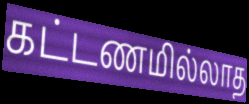
கட்டணமில்லாத